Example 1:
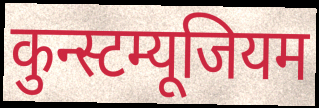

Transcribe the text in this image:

कुन्स्टम्यूजियम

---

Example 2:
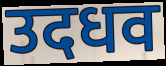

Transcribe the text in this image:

उदधव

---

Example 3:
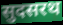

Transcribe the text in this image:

सुदसरथ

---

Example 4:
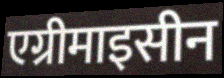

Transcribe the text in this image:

एग्रीमाइसीन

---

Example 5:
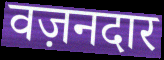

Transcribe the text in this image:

वज़नदार